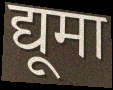
द्यूमा